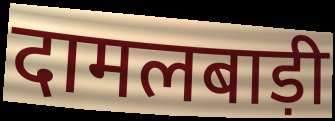
दामलबाड़ी